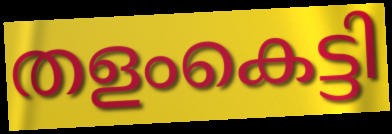
തളംകെട്ടി